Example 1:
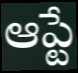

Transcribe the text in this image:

ఆప్టే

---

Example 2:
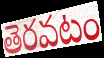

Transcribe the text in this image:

తెరవటం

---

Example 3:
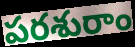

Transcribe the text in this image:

పరశురాం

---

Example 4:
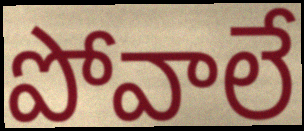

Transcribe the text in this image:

పోవాలే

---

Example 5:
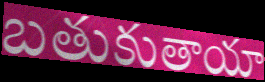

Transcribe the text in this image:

బతుకుతాయా